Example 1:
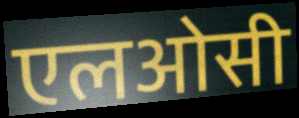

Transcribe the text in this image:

एलओसी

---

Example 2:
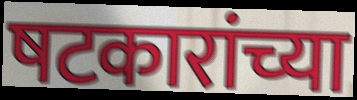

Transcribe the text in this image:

षटकारांच्या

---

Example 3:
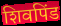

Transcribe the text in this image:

शिवपिंड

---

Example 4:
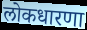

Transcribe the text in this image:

लोकधारणा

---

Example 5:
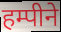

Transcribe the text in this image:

हम्पीने